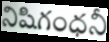
నిషిగంధనీ